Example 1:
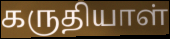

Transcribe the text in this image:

கருதியாள்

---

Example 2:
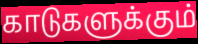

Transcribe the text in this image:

காடுகளுக்கும்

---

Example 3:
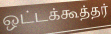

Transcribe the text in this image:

ஒட்டக்கூத்தர்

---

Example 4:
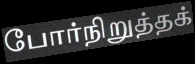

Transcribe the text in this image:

போர்நிறுத்தக்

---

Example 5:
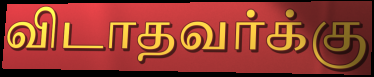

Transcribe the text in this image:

விடாதவர்க்கு